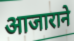
आजाराने